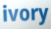
ivory